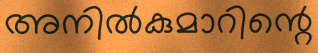
അനിൽകുമാറിന്റെ